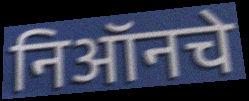
निऑनचे